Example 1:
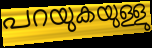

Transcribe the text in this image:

പറയുകയുള്ളു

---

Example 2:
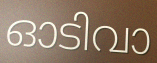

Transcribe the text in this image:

ഓടിവാ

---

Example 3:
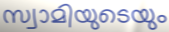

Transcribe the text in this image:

സ്വാമിയുടെയും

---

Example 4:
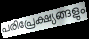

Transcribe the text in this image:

പരിപ്രേക്ഷ്യങ്ങളും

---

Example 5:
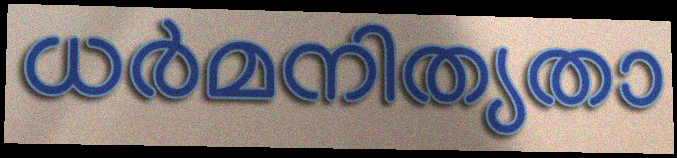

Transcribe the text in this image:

ധർമനിത്യതാ